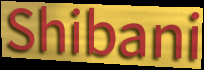
Shibani